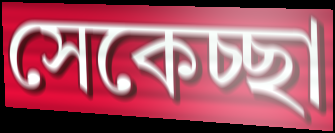
সেকেচ্ছা